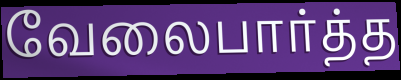
வேலைபார்த்த